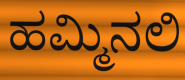
ಹಮ್ಮಿನಲಿ